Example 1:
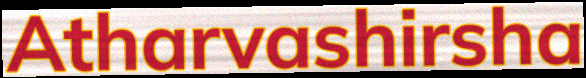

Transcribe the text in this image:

Atharvashirsha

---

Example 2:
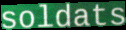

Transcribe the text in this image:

soldats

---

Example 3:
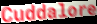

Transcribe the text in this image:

Cuddalore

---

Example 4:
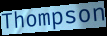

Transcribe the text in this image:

Thompson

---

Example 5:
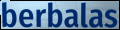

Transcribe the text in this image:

berbalas